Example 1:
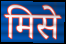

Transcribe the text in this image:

मिसे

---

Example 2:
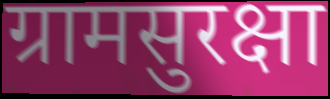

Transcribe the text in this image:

ग्रामसुरक्षा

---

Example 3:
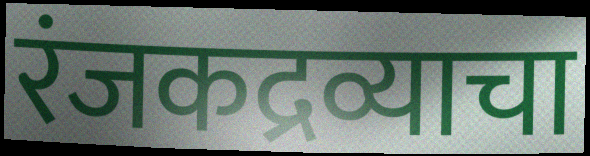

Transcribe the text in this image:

रंजकद्रव्याचा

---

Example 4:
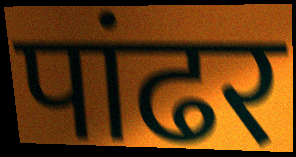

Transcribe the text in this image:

पांढर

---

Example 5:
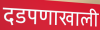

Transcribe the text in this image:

दडपणाखाली